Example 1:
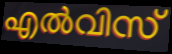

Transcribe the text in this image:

എൽവിസ്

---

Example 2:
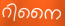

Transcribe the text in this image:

റിനൈ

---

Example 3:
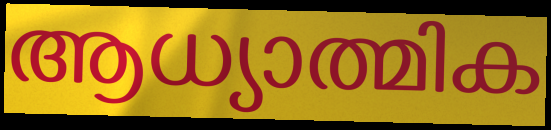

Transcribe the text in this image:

ആധ്യാത്മിക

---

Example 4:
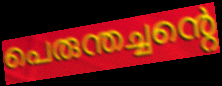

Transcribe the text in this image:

പെരുന്തച്ചന്റെ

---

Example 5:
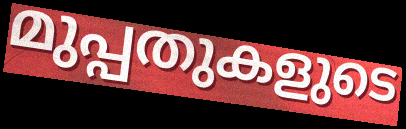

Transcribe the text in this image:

മുപ്പതുകളുടെ